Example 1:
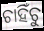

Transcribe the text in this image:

ଚାହିଁଚୁ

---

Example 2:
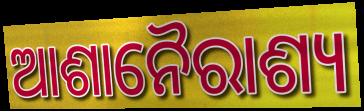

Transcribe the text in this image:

ଆଶାନୈରାଶ୍ୟ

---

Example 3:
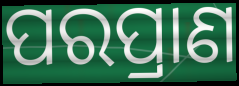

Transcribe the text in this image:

ପରପ୍ରାଣ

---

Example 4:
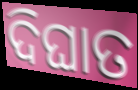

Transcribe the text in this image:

ଦିଘାତ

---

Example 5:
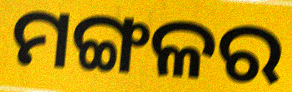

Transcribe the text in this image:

ମଙ୍ଗଳର